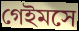
গেইমসে